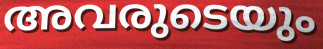
അവരുടെയും